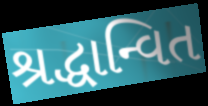
શ્રદ્ધાન્વિત